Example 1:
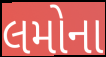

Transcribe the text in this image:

લમોના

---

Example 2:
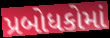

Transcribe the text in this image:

પ્રબોધકોમાં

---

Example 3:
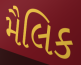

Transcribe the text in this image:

મૈલિક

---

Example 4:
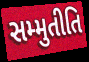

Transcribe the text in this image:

સમ્મુતીતિ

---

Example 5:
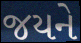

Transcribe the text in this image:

જયને